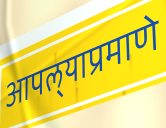
आपल्याप्रमाणे